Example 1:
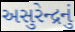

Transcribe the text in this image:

અસુરેન્દ્રનું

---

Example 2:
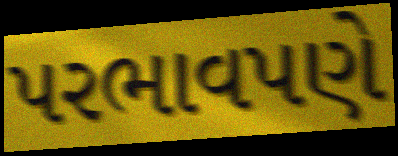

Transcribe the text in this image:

પરભાવપણે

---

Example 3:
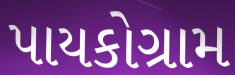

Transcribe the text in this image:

પાયકોગ્રામ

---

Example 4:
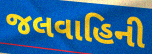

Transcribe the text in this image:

જલવાહિની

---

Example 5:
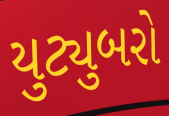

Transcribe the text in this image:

યુટ્યુબરો